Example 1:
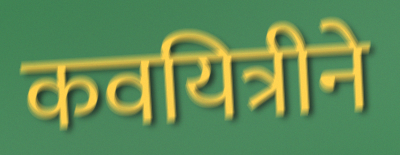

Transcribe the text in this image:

कवयित्रीने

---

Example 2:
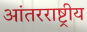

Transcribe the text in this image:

आंतरराष्ट्रीय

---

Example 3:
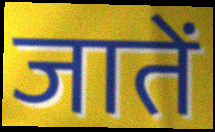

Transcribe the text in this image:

जातें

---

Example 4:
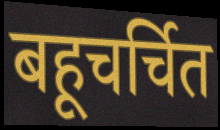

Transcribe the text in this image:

बहूचर्चित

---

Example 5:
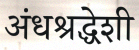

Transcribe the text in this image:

अंधश्रद्धेशी